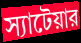
স্যাটেয়ার